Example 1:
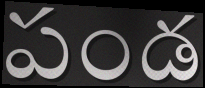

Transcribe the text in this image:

పండ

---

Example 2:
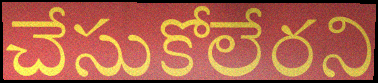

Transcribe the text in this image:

చేసుకోలేరని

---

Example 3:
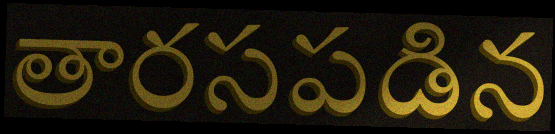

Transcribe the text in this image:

తారసపడిన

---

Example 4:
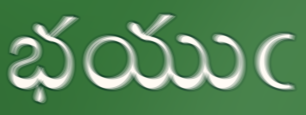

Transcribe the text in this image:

భయుఁ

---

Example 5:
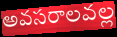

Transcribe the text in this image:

అవసరాలవల్ల